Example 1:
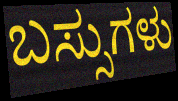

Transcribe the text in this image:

ಬಸ್ಸುಗಳು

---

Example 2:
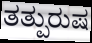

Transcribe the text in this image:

ತತ್ಪುರುಷ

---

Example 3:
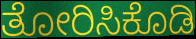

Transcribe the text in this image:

ತೋರಿಸಿಕೊಡಿ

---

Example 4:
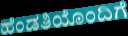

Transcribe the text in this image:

ಹೆಂಡತಿಯೊಂದಿಗೆ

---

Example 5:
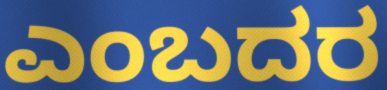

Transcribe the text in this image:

ಎಂಬದರ